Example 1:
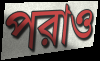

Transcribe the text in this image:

পরাও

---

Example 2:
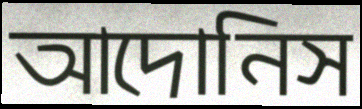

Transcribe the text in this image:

আদোনিস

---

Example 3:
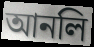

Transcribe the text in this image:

আনলি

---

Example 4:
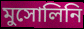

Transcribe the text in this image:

মুসোলিনি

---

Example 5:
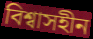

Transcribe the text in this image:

বিশ্বাসহীন